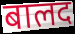
बालद